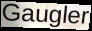
Gaugler